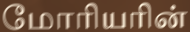
மோரியரின்